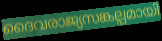
ദൈവരാജ്യസങ്കല്പമായി